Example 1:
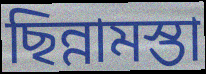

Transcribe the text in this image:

ছিন্নামস্তা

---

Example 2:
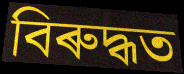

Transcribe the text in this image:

বিৰুদ্ধত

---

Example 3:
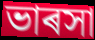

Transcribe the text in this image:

ভাৰসা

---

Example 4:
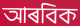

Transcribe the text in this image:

আৰবিক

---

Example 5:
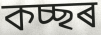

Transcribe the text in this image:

কচ্ছৰ